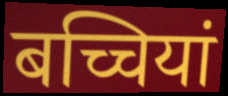
बच्चियां